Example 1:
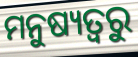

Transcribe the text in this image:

ମନୁଷ୍ୟତ୍ୱରୁ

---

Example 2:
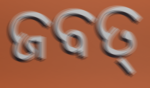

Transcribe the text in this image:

ଜବତ୍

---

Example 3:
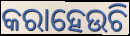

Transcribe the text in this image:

କରାହେଉଚି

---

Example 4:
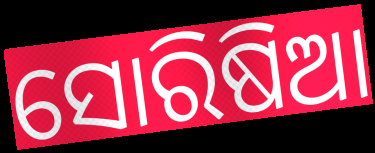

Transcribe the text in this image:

ସୋରିଷିଆ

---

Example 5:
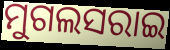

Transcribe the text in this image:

ମୁଗଲସରାଇ